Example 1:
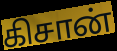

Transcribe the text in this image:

கிசான்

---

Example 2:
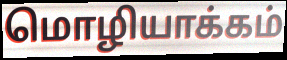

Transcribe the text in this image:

மொழியாக்கம்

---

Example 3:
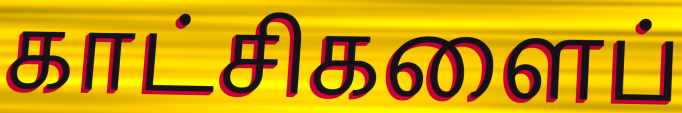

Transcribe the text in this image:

காட்சிகளைப்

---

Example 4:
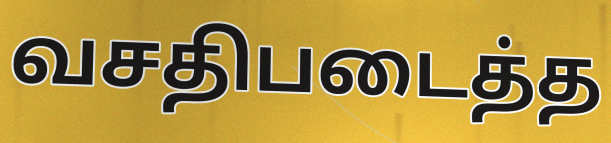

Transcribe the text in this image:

வசதிபடைத்த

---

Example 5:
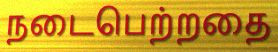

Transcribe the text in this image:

நடைபெற்றதை